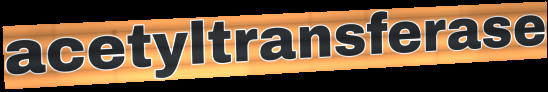
acetyltransferase